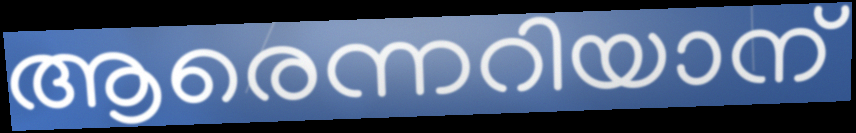
ആരെന്നറിയാന്